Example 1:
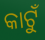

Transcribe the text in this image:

କାଟୁଁ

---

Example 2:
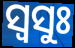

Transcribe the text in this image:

ସ୍ଵସୁଃ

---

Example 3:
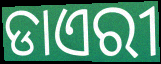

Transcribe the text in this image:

ଡାଏରୀ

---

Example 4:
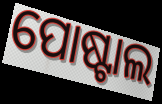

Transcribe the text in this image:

ପୋଷ୍ଟାଲ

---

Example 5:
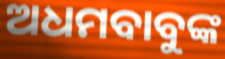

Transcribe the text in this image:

ଅଧମବାବୁଙ୍କ